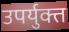
उपर्युक्त